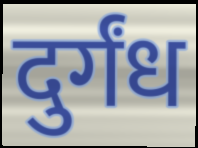
दुर्गंध